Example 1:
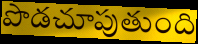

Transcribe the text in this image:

పొడచూపుతుంది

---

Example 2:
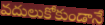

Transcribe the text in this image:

వదులుకోకుండానే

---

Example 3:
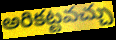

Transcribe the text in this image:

అరికట్టవచ్చు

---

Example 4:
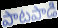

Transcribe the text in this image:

పాటపాడి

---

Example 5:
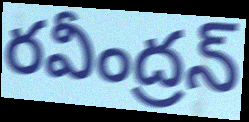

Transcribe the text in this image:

రవీంద్రన్